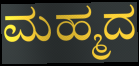
ಮಹ್ಮದ